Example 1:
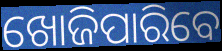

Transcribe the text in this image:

ଖୋଜିପାରିବେ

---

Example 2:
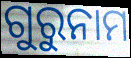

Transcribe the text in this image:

ଗୁରୁନାମ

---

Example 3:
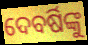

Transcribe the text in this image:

ଦେବର୍ଷିଙ୍କୁ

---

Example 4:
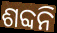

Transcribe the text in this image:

ଶବ୍ଦନି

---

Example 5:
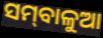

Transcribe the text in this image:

ସମ୍‌ବାଳୁଆ